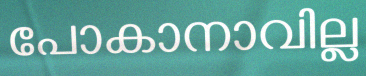
പോകാനാവില്ല